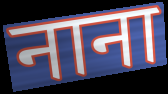
नाना